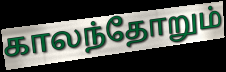
காலந்தோறும்